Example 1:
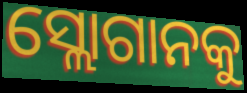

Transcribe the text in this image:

ସ୍ଲୋଗାନକୁ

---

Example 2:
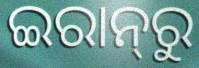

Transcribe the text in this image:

ଇରାନ୍‌ରୁ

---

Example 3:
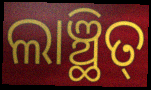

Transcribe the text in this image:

ଲାଞ୍ଛିତ୍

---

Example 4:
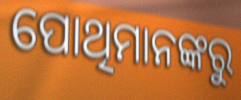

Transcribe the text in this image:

ପୋଥିମାନଙ୍କରୁ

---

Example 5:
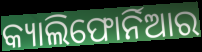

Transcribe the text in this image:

କ୍ୟାଲିଫୋର୍ନିଆର